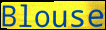
Blouse